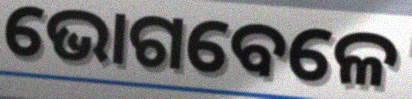
ଭୋଗବେଳେ